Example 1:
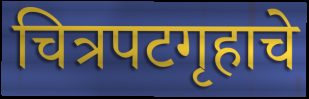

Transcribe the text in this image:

चित्रपटगृहाचे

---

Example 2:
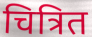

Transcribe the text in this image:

चित्रित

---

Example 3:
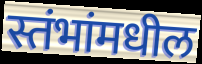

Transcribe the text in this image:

स्तंभांमधील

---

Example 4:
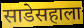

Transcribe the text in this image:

साडेसहाला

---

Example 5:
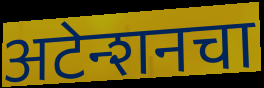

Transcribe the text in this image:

अटेन्शनचा